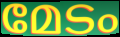
മേടം